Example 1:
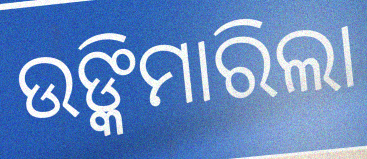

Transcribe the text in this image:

ଉଙ୍କିମାରିଲା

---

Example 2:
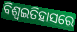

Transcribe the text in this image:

ବିଶ୍ଵଇତିହାସରେ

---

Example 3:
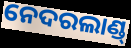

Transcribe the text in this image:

ନେଦରଲାଣ୍ଡ୍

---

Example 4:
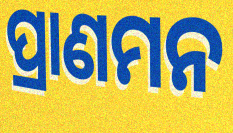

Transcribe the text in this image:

ପ୍ରାଣମନ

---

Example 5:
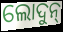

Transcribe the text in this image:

ଲୋଦୁନ୍